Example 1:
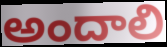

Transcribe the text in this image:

అందాలి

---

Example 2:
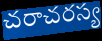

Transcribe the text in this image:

చరాచరస్య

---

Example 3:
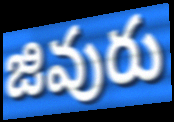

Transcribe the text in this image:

జివురు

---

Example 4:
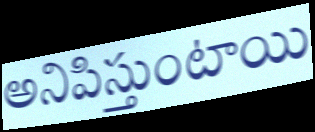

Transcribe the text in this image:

అనిపిస్తుంటాయి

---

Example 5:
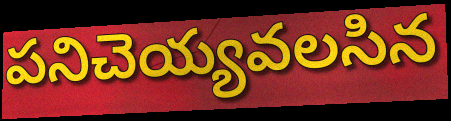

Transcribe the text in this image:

పనిచెయ్యవలసిన